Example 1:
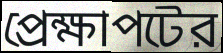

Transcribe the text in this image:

প্রেক্ষাপটের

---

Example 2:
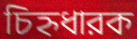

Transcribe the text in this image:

চিহ্নধারক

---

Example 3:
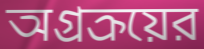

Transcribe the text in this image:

অগ্রক্রয়ের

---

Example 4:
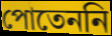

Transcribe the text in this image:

পোতেননি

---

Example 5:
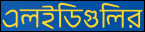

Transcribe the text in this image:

এলইডিগুলির